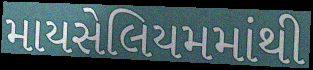
માયસેલિયમમાંથી